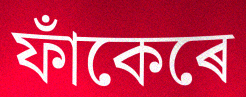
ফাঁকেৰে